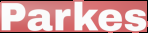
Parkes